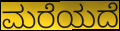
ಮರೆಯದೆ